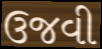
ઉજવી